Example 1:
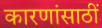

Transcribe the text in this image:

कारणांसाठीं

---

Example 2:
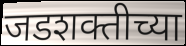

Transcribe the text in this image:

जडशक्तीच्या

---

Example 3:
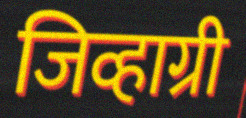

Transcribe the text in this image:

जिव्हाग्री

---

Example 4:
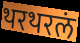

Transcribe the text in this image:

थरथरलं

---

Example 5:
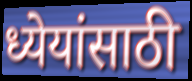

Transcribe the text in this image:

ध्येयांसाठी